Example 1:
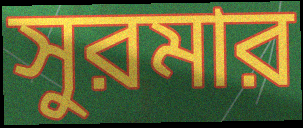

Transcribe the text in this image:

সুরমার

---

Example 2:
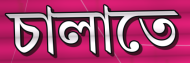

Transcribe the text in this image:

চালাতে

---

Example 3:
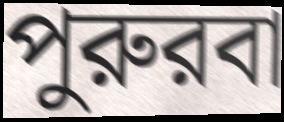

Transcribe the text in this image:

পুরুরবা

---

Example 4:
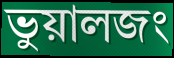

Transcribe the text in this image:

ভুয়ালজং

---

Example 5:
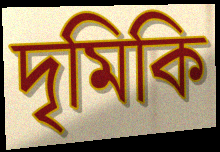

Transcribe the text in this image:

দৃমিকি